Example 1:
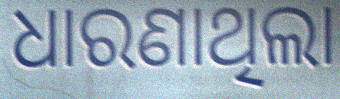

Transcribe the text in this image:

ଧାରଣାଥିଲା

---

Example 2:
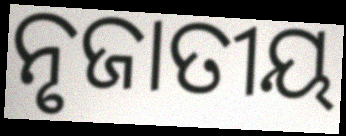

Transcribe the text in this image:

ନୃଜାତୀୟ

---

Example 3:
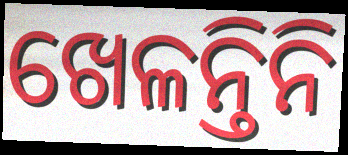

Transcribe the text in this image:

ଖେଳନ୍ତିନି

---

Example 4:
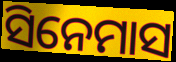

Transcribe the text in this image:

ସିନେମାସ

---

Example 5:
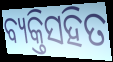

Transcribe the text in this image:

ବ୍ୟକ୍ତିସହିତ